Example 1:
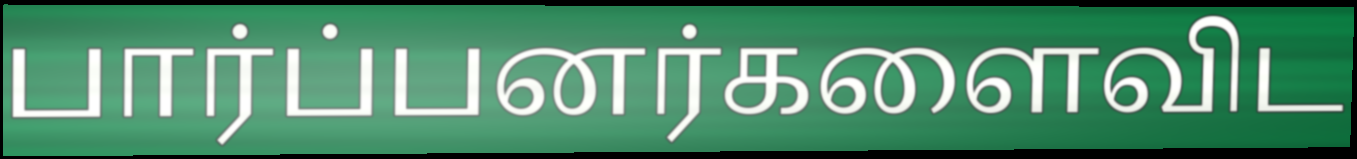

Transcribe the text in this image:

பார்ப்பனர்களைவிட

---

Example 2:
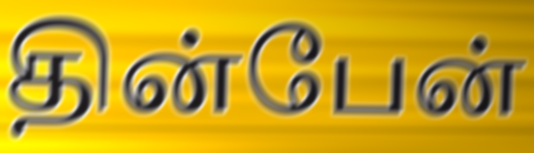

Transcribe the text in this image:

தின்பேன்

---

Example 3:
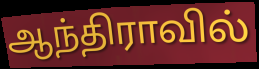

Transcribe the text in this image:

ஆந்திராவில்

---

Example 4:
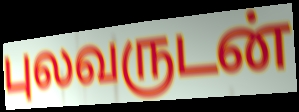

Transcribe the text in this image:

புலவருடன்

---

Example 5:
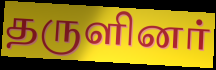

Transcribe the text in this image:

தருளினர்